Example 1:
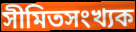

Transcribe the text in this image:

সীমিতসংখ্যক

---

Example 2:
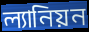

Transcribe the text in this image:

ল্যানিয়ন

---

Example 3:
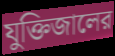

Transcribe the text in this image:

যুক্তিজালের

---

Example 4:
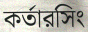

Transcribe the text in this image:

কর্তারসিং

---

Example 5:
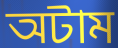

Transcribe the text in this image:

অটাম